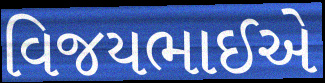
વિજયભાઈએ